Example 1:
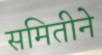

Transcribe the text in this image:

समितीने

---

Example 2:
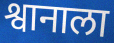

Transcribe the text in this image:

श्वानाला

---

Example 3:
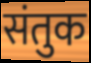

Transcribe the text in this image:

संतुक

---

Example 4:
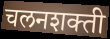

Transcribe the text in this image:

चलनशक्ती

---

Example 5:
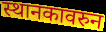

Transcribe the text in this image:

स्थानकावरुन